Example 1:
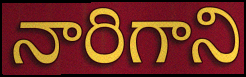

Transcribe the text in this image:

నారిగాని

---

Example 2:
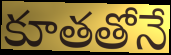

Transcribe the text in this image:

కూతతోనే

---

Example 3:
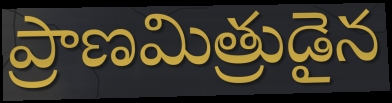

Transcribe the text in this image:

ప్రాణమిత్రుడైన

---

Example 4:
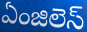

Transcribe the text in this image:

ఏంజిలెస్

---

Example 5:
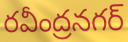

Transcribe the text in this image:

రవీంద్రనగర్